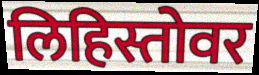
लिहिस्तोवर